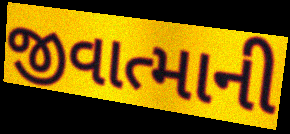
જીવાત્માની